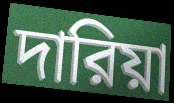
দারিয়া